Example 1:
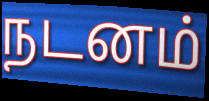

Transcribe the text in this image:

நடனம்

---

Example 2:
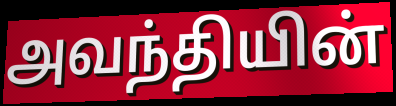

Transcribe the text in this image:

அவந்தியின்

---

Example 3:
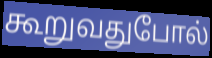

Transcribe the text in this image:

கூறுவதுபோல்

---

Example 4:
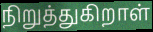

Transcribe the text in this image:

நிறுத்துகிறாள்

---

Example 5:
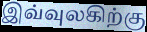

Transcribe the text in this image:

இவ்வுலகிற்கு